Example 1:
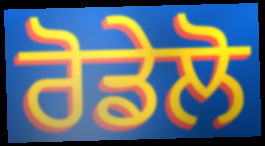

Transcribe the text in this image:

ਰੋਡੇਲੋ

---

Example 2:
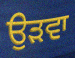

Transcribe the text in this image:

ਉੜਵਾ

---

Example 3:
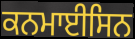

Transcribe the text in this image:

ਕਨਮਾਈਸਿਨ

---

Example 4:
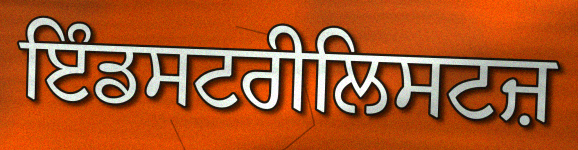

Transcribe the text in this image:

ਇੰਡਸਟਰੀਲਿਸਟਜ਼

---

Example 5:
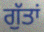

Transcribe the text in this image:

ਗੁੱਤਾਂ